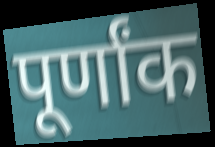
पूर्णांक